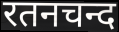
रतनचन्द